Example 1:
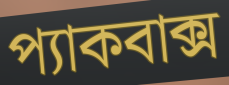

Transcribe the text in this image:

প্যাকবাক্স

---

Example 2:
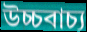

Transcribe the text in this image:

উচ্চবাচ্য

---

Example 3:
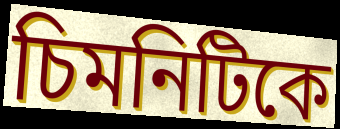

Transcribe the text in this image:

চিমনিটিকে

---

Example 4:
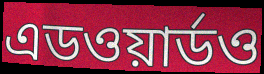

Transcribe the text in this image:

এডওয়ার্ডও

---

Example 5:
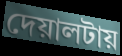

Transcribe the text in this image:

দেয়ালটায়